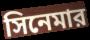
সিনেমার